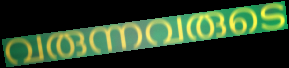
വരുന്നവരുടെ